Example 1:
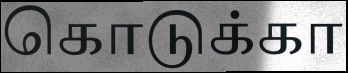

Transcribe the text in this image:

கொடுக்கா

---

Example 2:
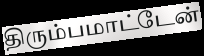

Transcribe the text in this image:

திரும்பமாட்டேன்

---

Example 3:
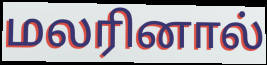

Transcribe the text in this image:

மலரினால்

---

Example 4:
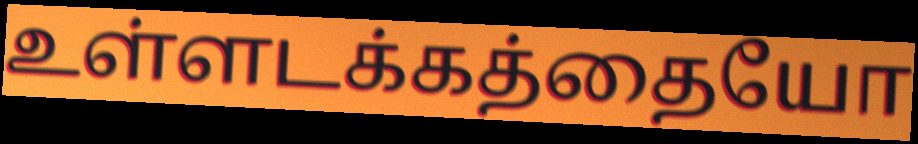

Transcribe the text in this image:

உள்ளடக்கத்தையோ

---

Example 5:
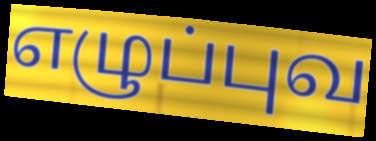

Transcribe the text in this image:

எழுப்புவ